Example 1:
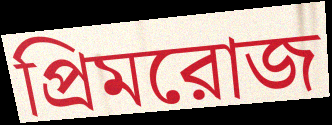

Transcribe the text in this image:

প্রিমরোজ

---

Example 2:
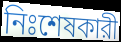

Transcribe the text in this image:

নিঃশেষকারী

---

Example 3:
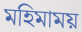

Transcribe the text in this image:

মহিমাময়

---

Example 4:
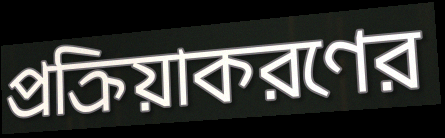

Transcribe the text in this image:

প্রক্রিয়াকরণের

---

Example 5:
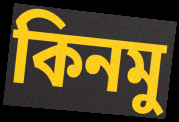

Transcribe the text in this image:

কিনমু